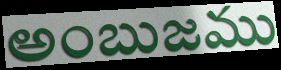
అంబుజము